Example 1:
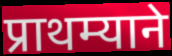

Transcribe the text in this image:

प्राथम्याने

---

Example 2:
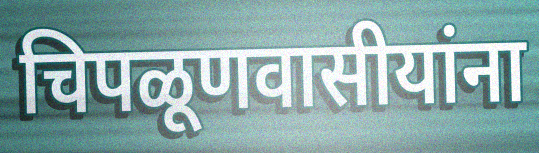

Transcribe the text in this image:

चिपळूणवासीयांना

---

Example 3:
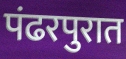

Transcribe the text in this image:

पंढरपुरात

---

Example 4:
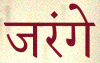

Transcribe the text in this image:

जरंगे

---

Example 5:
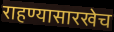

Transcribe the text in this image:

राहण्यासारखेच